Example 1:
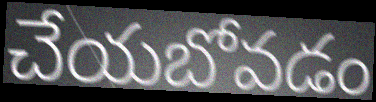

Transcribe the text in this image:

చేయబోవడం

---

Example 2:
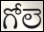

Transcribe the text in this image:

గోలె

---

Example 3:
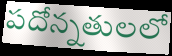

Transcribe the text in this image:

పదోన్నతులలో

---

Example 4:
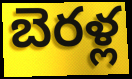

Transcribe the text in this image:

బెరళ్ల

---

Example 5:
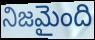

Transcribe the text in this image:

నిజమైంది